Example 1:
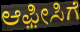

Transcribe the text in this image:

ಆಫ಼ೀಸಿಗೆ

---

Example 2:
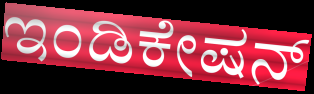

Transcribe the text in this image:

ಇಂಡಿಕೇಷನ್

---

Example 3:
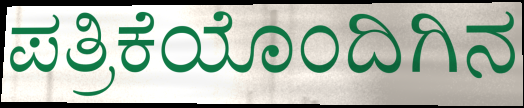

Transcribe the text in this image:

ಪತ್ರಿಕೆಯೊಂದಿಗಿನ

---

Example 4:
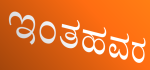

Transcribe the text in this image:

ಇಂತಹವರ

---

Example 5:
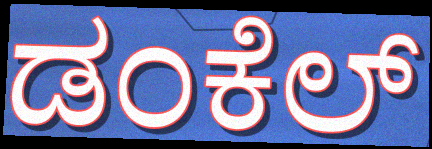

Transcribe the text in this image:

ಡಂಕೆಲ್